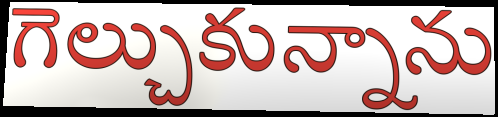
గెల్చుకున్నాను